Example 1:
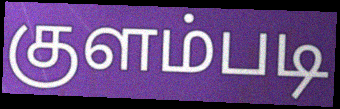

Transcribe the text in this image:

குளம்படி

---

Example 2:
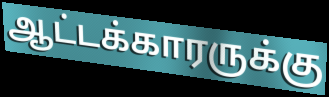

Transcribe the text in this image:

ஆட்டக்காரருக்கு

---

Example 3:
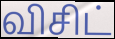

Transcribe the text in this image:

விசிட்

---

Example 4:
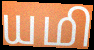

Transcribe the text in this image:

யமி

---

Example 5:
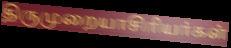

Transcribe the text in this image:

திருமுறையாசிரியர்கள்